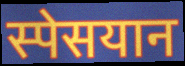
स्पेसयान